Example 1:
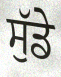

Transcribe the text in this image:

ਸੁੱਡੇ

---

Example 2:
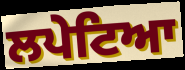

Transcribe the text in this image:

ਲਪੇਟਿਆ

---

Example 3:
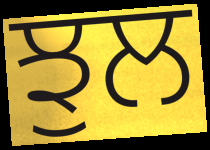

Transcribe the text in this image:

ਝੁਲ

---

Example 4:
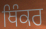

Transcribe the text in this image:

ਥਿੰਕਰ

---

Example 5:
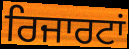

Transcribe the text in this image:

ਰਿਜਾਰਟਾਂ